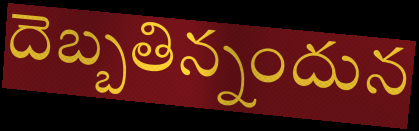
దెబ్బతిన్నందున